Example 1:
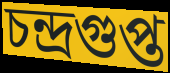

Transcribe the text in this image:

চন্দ্ৰগুপ্ত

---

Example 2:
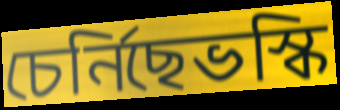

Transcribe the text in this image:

চেৰ্নিছেভস্কি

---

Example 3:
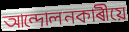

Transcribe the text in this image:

আন্দোলনকাৰীয়ে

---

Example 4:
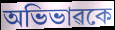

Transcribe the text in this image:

অভিভাৱকে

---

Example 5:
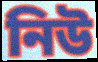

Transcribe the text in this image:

নিউ